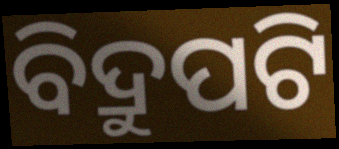
ବିଦ୍ରୁପଟି